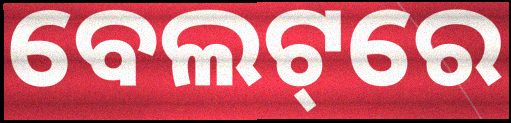
ବେଲଟ୍‌ରେ